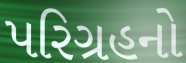
પરિગ્રહનો